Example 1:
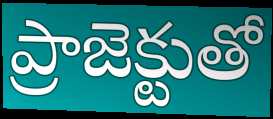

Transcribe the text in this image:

ప్రాజెక్టుతో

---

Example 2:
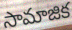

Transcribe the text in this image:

సామాజిక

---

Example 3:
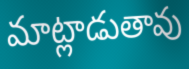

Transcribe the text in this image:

మాట్లాడుతావు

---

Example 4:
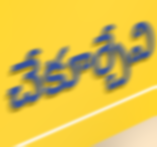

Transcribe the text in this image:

చేకూర్చేవి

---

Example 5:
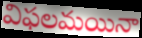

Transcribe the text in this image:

విఫలమయినా